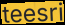
teesri